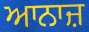
ਆਨਾਜ਼